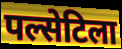
पल्सेटिला